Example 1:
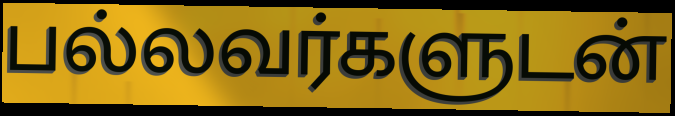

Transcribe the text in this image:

பல்லவர்களுடன்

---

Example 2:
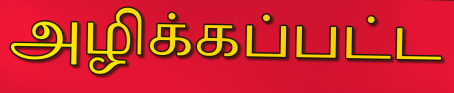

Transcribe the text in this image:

அழிக்கப்பட்ட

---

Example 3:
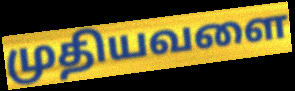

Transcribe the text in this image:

முதியவளை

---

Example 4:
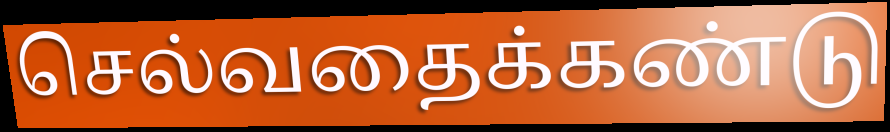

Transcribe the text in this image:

செல்வதைக்கண்டு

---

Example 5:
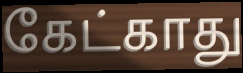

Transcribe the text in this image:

கேட்காது